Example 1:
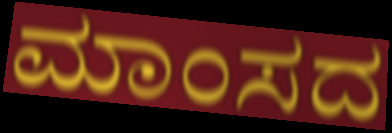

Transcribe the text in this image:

ಮಾಂಸದ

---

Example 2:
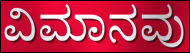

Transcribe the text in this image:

ವಿಮಾನವು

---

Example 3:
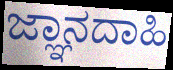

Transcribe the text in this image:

ಜ್ಞಾನದಾಹಿ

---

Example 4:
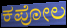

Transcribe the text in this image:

ಕಪೋಲ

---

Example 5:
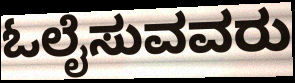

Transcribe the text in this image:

ಓಲೈಸುವವರು